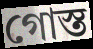
গোস্ত